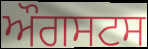
ਔਗਸਟਸ